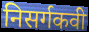
निसर्गकवी